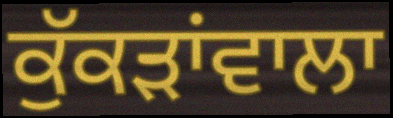
ਕੁੱਕੜਾਂਵਾਲਾ